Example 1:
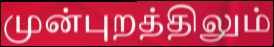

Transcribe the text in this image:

முன்புறத்திலும்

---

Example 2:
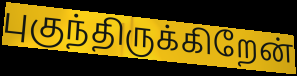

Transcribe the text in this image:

புகுந்திருக்கிறேன்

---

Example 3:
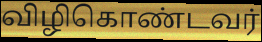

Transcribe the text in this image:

விழிகொண்டவர்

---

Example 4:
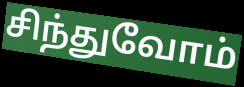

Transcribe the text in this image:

சிந்துவோம்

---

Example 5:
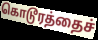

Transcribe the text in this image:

கொடூரத்தைச்